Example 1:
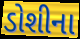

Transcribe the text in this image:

ડોશીના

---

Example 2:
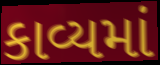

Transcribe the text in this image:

કાવ્યમાં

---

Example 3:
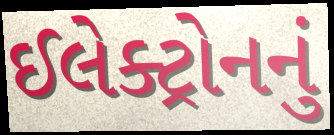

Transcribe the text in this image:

ઈલેક્ટ્રોનનું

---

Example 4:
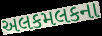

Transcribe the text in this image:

અલકમલકના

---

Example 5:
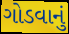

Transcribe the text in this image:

ગોડવાનું